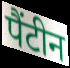
पैंटीन